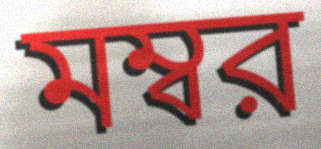
মম্বর